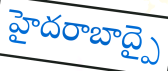
హైదరాబాద్పై